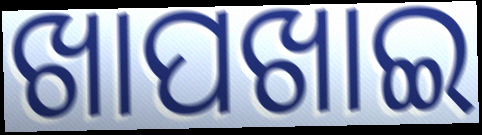
ଖାପଖାଇ